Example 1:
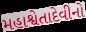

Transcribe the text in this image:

મહાશ્વેતાદેવીનો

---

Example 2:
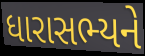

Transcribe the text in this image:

ધારાસભ્યને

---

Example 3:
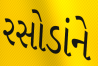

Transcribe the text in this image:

રસોડાંને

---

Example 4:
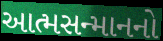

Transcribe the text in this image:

આત્મસન્માનનો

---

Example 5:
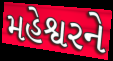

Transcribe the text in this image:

મહેશ્વરને